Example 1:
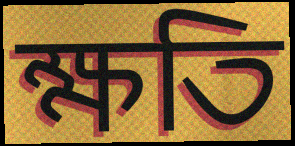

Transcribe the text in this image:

ক্ষতি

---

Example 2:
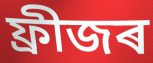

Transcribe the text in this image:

ফ্ৰীজৰ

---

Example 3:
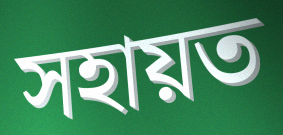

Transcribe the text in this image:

সহায়ত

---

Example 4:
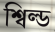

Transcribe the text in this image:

শ্বিল্ড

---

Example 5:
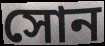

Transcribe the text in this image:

সোন